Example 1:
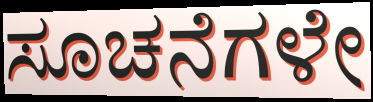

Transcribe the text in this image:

ಸೂಚನೆಗಳೇ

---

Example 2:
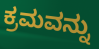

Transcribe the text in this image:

ಕ್ರಮವನ್ನು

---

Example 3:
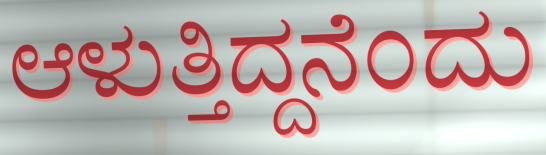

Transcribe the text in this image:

ಆಳುತ್ತಿದ್ದನೆಂದು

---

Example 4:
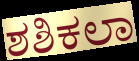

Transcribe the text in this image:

ಶಶಿಕಲಾ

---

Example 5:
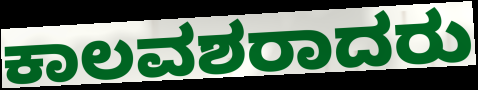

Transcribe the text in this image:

ಕಾಲವಶರಾದರು